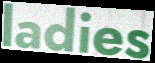
ladies